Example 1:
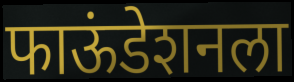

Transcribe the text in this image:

फाऊंडेशनला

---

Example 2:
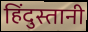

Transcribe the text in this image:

हिंदुस्तानी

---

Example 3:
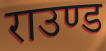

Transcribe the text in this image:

राउण्ड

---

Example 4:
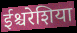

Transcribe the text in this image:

ईश्चरेशिया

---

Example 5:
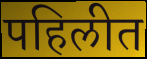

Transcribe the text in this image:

पहिलीत